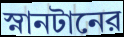
স্নানটানের